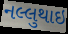
નલ્લુથાઇ